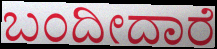
ಬಂದೀದಾರೆ